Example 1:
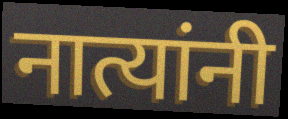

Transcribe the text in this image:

नात्यांनी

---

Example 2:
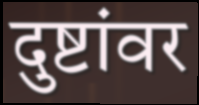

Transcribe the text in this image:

दुष्टांवर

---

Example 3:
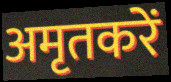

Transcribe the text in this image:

अमृतकरें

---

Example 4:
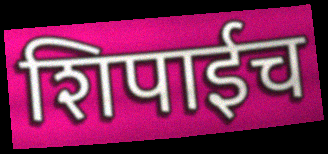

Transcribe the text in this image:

शिपाईच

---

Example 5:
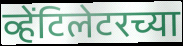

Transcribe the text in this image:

व्हेंटिलेटरच्या